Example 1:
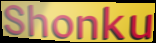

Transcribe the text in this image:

Shonku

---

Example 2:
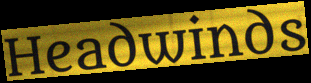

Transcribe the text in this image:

Headwinds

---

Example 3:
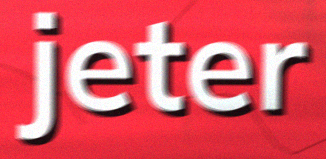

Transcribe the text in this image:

jeter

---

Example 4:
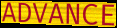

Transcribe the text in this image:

ADVANCE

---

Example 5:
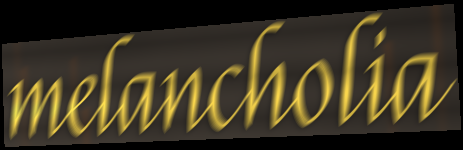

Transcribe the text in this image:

melancholia